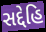
સદ્દેહિ